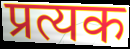
प्रत्यक